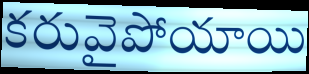
కరువైపోయాయి